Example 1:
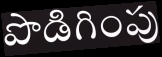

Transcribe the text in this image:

పొడిగింపు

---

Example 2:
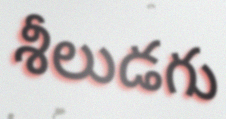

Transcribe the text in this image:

శీలుడగు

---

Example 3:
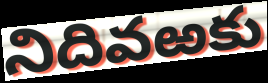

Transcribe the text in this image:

నిదివఱకు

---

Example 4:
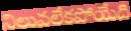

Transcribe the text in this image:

నిలువలేకపోయేది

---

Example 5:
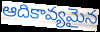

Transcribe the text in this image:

ఆదికావ్యమైన